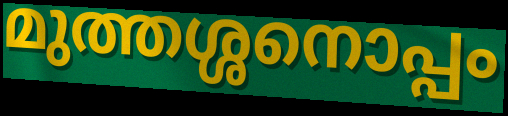
മുത്തശ്ശനൊപ്പം